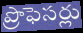
ప్రొఫెసర్లు